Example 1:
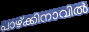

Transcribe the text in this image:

പാഴ്ക്കിനാവിൽ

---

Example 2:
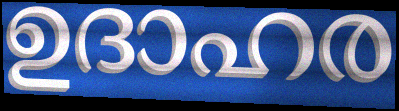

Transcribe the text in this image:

ഉദാഹര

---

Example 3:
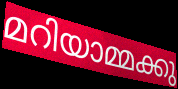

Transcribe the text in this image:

മറിയാമ്മക്കു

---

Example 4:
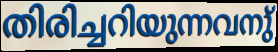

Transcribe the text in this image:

തിരിച്ചറിയുന്നവനു്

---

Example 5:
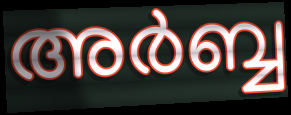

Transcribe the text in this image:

അർബ്ബ